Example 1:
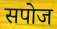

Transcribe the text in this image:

सपोज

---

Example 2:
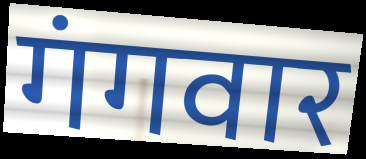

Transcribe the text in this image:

गंगवार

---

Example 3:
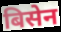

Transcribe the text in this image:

बिसेन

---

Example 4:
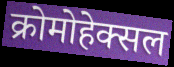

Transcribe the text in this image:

क्रोमोहेक्सल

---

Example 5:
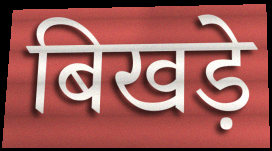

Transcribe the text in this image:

बिखड़े